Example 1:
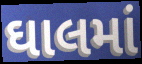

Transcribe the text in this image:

ઘાલમાં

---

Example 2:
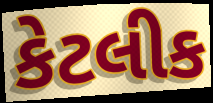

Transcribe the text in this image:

કેટલીક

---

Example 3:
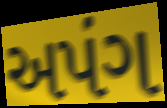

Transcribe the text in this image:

અપંગ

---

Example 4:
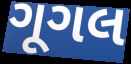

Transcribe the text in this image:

ગૂગલ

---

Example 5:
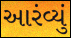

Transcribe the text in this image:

આરંવ્યું